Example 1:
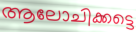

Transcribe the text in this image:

ആലോചിക്കട്ടെ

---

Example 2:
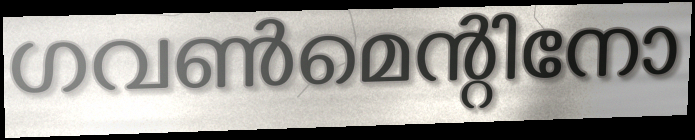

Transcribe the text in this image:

ഗവൺമെന്റിനോ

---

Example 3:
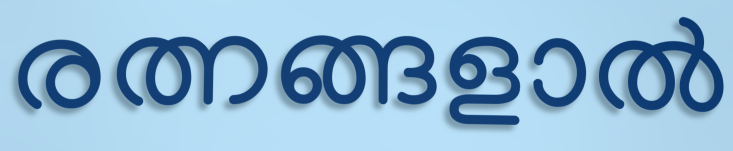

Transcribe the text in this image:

രത്നങ്ങളാൽ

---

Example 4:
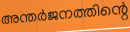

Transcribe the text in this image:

അന്തർജനത്തിന്റെ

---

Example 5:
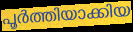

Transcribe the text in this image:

പൂർത്തിയാക്കിയ